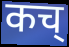
कच्